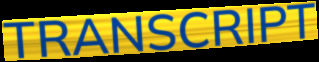
TRANSCRIPT